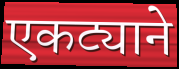
एकट्याने